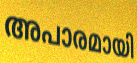
അപാരമായി